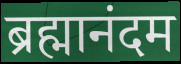
ब्रह्मानंदम